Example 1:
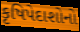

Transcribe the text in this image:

કૃષિપેદાશોનો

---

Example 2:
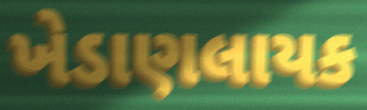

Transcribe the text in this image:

ખેડાણલાયક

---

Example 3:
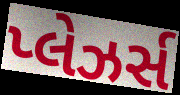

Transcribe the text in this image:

પ્લેઝર્સ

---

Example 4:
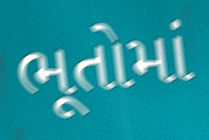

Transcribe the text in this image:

ભૂતોમાં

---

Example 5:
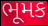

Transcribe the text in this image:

ભૂમક